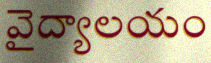
వైద్యాలయం